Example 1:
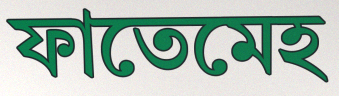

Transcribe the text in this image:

ফাতেমেহ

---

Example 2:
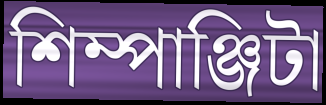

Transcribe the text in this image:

শিম্পাঞ্জিটা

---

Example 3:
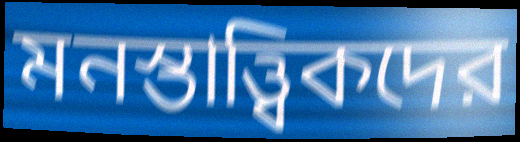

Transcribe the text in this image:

মনস্তাত্ত্বিকদের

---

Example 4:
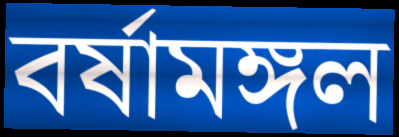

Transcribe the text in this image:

বর্ষামঙ্গল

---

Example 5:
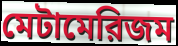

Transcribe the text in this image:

মেটামেরিজম